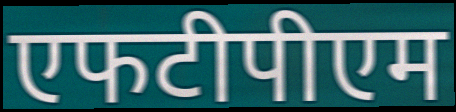
एफटीपीएम